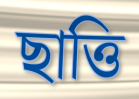
ছাত্তি